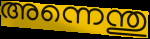
അന്നെന്തു